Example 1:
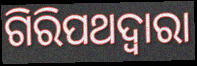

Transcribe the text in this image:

ଗିରିପଥଦ୍ୱାରା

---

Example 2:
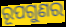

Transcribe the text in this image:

ରୂପଗୁଣର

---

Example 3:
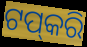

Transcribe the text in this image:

ଟପ୍‌କରି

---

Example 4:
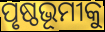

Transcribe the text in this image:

ପୃଷ୍ଠଭୂମୀକୁ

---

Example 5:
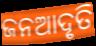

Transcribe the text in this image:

ଜନଆଦୃତି